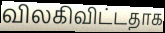
விலகிவிட்டதாக